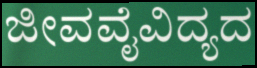
ಜೀವವೈವಿದ್ಯದ